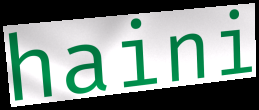
haini